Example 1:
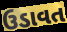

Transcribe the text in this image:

ઉડાવત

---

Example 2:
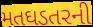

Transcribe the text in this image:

મતઘડતરની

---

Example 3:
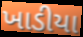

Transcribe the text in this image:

ખાડીયા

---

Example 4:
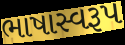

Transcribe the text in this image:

ભાષાસ્વરૂપ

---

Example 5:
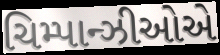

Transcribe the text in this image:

ચિમ્પાન્ઝીઓએ